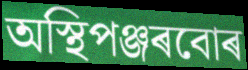
অস্থিপঞ্জৰবোৰ